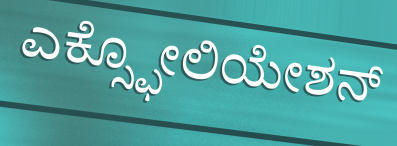
ಎಕ್ಸ್ಫೋಲಿಯೇಶನ್